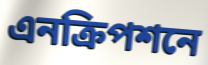
এনক্রিপশনে